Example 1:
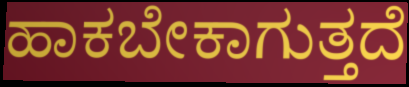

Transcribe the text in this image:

ಹಾಕಬೇಕಾಗುತ್ತದೆ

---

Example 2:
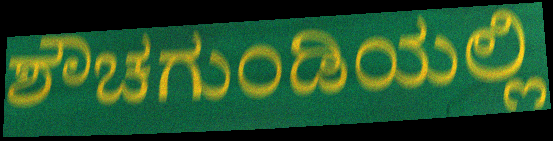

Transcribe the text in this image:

ಶೌಚಗುಂಡಿಯಲ್ಲಿ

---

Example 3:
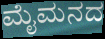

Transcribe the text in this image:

ಮೈಮನದ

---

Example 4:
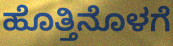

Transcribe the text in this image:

ಹೊತ್ತಿನೊಳಗೆ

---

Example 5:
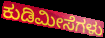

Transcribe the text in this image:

ಕುಡಿಮೀಸೆಗಳು